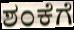
ಶಂಕೆಗೆ